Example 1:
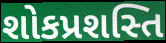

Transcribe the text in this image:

શોકપ્રશસ્તિ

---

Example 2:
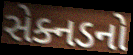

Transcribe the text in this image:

સેક્નડનો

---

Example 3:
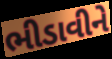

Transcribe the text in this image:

ભીડાવીને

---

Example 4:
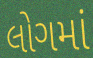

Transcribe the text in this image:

લોગમાં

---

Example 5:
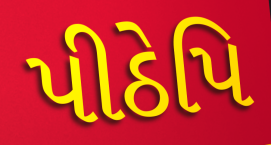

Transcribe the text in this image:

પીઠેપિ